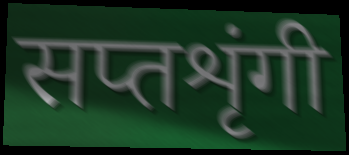
सप्तशृंगी